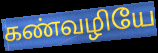
கண்வழியே